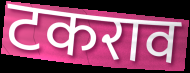
टकराव